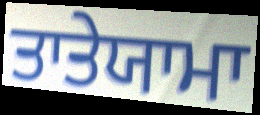
ਤਾਤੇਯਾਮਾ